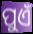
ପୁଏଁ